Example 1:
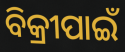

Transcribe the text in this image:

ବିକ୍ରୀପାଇଁ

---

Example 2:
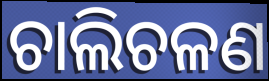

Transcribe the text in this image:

ଚାଲିଚଳଣ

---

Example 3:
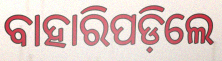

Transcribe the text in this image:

ବାହାରିପଡ଼ିଲେ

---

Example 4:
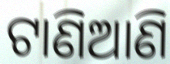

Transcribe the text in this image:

ଟାଣିଆଣି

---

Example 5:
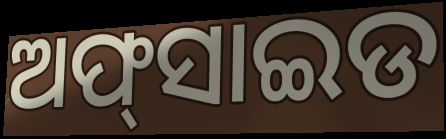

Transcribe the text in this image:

ଅଫ୍‍ସାଇଡ